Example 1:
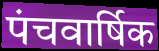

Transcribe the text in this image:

पंचवार्षिक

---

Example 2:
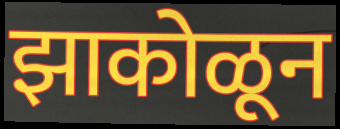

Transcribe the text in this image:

झाकोळून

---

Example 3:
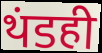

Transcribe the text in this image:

थंडही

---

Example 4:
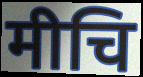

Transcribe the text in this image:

मीचि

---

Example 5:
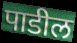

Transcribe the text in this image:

पाडील